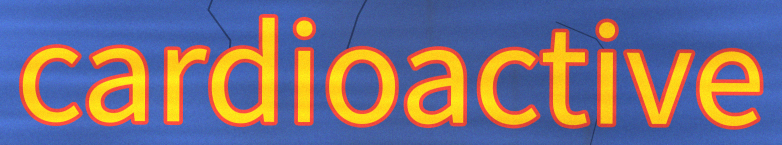
cardioactive